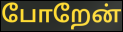
போறேன்